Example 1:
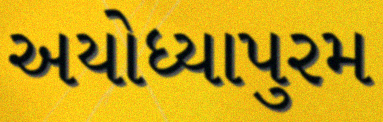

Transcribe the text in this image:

અયોધ્યાપુરમ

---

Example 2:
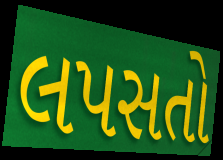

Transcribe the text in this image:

લપસતો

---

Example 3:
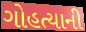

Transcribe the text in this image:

ગોહત્યાની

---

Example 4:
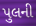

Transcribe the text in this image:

પુલની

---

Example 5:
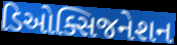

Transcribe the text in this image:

ડિઓક્સિજનેશન